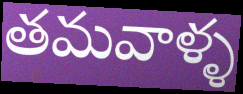
తమవాళ్ళ